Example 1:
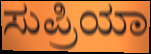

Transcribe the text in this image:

ಸುಪ್ರಿಯಾ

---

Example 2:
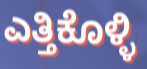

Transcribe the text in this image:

ಎತ್ತಿಕೊಳ್ಳಿ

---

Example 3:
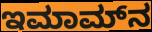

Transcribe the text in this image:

ಇಮಾಮ್‍ನ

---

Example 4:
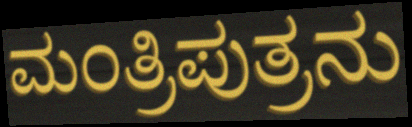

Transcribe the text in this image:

ಮಂತ್ರಿಪುತ್ರನು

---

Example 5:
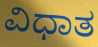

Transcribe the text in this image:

ವಿಧಾತ